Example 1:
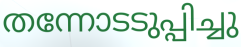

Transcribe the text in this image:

തന്നോടടുപ്പിച്ചു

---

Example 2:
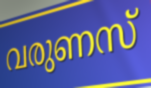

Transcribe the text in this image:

വരുണസ്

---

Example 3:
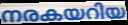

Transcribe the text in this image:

നരകയറിയ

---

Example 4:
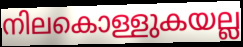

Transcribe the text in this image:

നിലകൊള്ളുകയല്ല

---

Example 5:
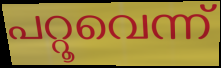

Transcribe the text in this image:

പറ്റൂവെന്ന്